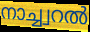
നാച്ച്വറൽ